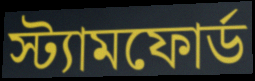
স্ট্যামফোর্ড